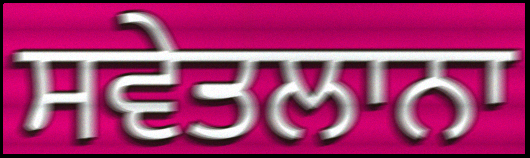
ਸਵੇਤਲਾਨਾ